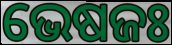
ଭେଷଜଃ